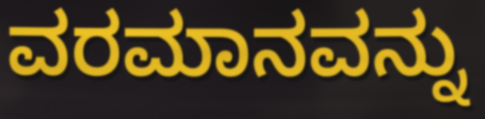
ವರಮಾನವನ್ನು